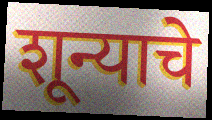
शून्याचे